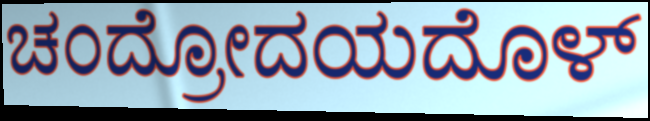
ಚಂದ್ರೋದಯದೊಳ್